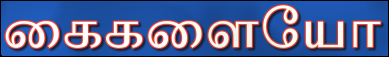
கைகளையோ